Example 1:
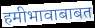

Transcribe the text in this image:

हमीभावाबाबत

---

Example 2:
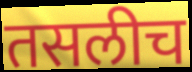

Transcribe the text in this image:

तसलीच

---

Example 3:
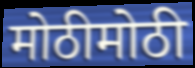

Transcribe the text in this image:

मोठीमोठी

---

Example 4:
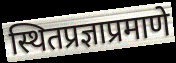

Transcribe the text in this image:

स्थितप्रज्ञाप्रमाणे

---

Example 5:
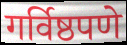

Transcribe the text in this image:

गर्विष्ठपणे